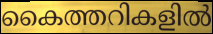
കൈത്തറികളിൽ